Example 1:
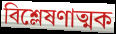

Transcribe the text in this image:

বিশ্লেষণাত্মক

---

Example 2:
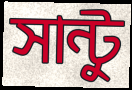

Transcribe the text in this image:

সান্টু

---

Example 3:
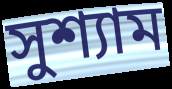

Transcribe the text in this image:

সুশ্যাম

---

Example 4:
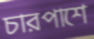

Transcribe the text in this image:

চারপাশে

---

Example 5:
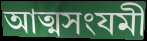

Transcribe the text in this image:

আত্মসংযমী